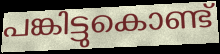
പങ്കിട്ടുകൊണ്ട്